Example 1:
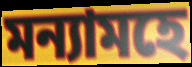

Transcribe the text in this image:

মন্যামহে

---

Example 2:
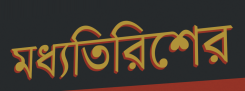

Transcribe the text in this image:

মধ্যতিরিশের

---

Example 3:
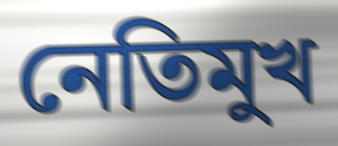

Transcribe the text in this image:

নেতিমুখ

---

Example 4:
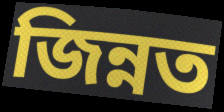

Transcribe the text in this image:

জিন্নত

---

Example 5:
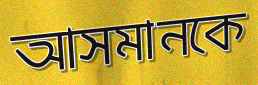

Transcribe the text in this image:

আসমানকে